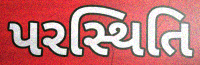
પરસ્થિતિ